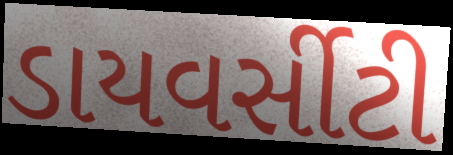
ડાયવર્સીટી